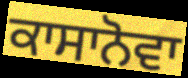
ਕਾਸਾਨੋਵਾ